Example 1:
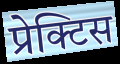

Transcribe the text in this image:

प्रेक्टिस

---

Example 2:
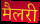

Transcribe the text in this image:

मैलरी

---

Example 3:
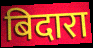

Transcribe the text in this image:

बिदारा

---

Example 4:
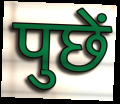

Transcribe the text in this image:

पुछें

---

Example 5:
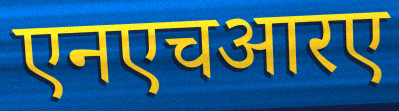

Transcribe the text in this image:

एनएचआरए